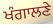
ਖੰਗਾਲਣੇ